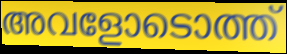
അവളോടൊത്ത്